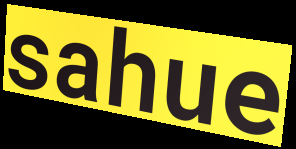
sahue